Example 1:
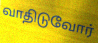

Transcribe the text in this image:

வாதிடுவோர்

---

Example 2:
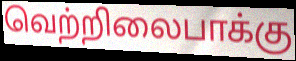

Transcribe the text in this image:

வெற்றிலைபாக்கு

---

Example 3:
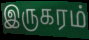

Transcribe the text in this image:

இருகரம்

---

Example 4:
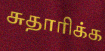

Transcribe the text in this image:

சுதாரிக்க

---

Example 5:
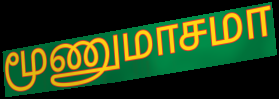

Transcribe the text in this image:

மூணுமாசமா